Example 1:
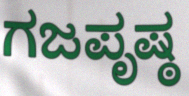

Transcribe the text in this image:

ಗಜಪೃಷ್ಠ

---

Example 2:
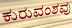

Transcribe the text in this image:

ಕುರುವಂಶವು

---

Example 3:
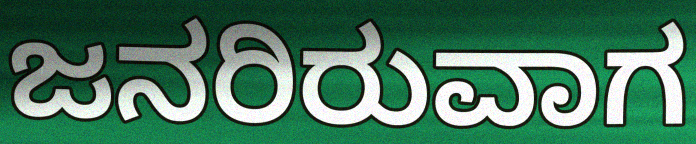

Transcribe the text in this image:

ಜನರಿರುವಾಗ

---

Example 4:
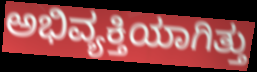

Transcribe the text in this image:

ಅಭಿವ್ಯಕ್ತಿಯಾಗಿತ್ತು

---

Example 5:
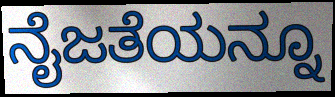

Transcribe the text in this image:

ನೈಜತೆಯನ್ನೂ